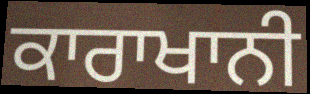
ਕਾਰਾਖਾਨੀ